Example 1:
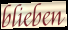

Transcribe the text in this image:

blieben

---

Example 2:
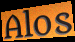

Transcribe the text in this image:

Alos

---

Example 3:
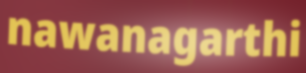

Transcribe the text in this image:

nawanagarthi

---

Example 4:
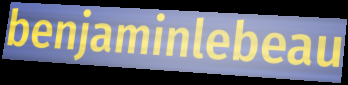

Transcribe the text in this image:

benjaminlebeau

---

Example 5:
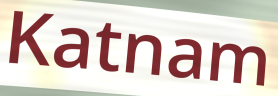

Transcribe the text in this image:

Katnam